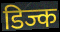
डिज्क